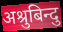
अश्रुबिन्दु